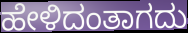
ಹೇಳಿದಂತಾಗದು